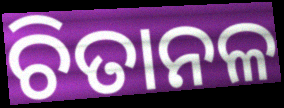
ଚିତାନଳ